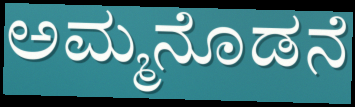
ಅಮ್ಮನೊಡನೆ